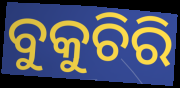
ବୁକୁଚିରି